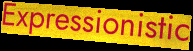
Expressionistic